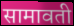
सामावती